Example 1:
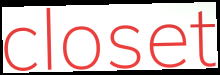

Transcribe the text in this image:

closet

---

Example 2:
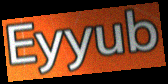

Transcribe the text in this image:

Eyyub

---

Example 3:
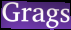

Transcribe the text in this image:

Grags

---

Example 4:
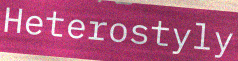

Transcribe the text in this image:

Heterostyly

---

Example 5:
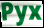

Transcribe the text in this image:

Pyx